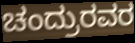
ಚಂದ್ರುರವರ